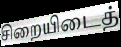
சிறையிடைத்